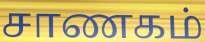
சாணகம்